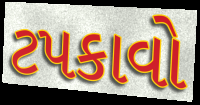
ટપકાવો